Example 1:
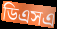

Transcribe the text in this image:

ডিএসএ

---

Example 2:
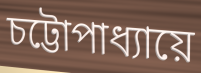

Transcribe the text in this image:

চট্টোপাধ্যায়ে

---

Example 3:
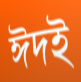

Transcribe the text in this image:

ঈদই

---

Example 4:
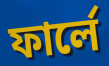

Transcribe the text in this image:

ফার্লে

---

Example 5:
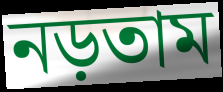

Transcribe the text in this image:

নড়তাম